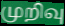
முறிவு